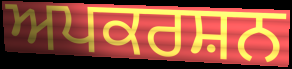
ਅਪਕਰਸ਼ਨ